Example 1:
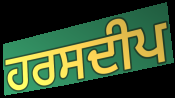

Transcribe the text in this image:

ਹਰਸਦੀਪ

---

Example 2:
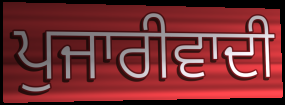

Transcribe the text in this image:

ਪੁਜਾਰੀਵਾਦੀ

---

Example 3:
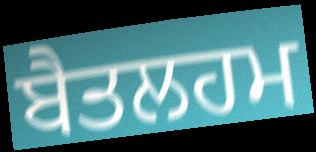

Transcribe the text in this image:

ਬੈਤਲਹਮ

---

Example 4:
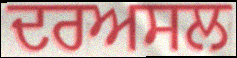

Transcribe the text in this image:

ਦਰਅਸਲ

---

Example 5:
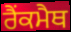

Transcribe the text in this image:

ਰੈਂਕਮੈਥ